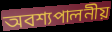
অবশ্যপালনীয়